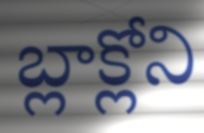
బ్లాక్లోని